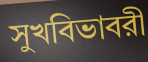
সুখবিভাবরী